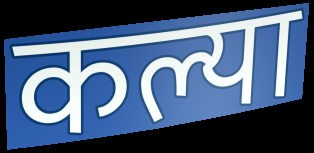
कल्या